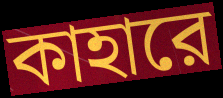
কাহারে